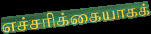
எச்சரிக்கையாகக்